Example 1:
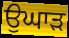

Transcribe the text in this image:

ਉਘਾੜ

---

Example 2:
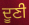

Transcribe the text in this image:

ਦੂਣੀ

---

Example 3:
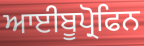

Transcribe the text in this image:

ਆਈਬੂਪ੍ਰੋਫਿਨ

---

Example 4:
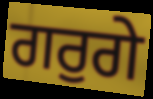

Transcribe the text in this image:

ਗਰੁਗੇ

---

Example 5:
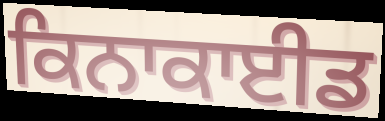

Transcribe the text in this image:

ਕਿਨਾਕਾਈਡ